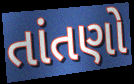
તાંતણો